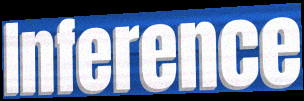
Inference